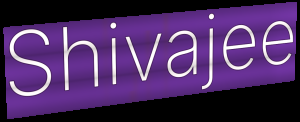
Shivajee